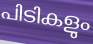
പിടികളും